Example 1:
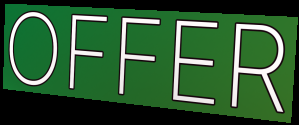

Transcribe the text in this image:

OFFER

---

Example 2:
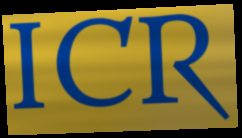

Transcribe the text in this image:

ICR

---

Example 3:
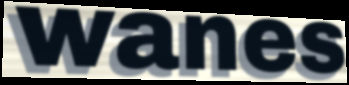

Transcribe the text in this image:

wanes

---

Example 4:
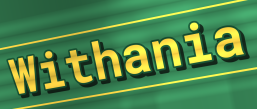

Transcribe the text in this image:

Withania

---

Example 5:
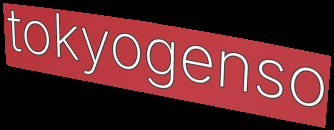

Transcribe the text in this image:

tokyogenso